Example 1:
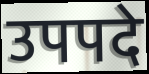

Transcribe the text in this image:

उपपदे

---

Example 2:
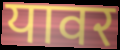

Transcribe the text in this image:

यावर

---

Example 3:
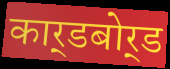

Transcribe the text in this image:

कार्डबोर्ड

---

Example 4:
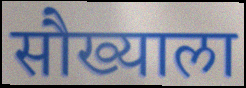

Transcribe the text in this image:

सौख्याला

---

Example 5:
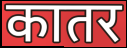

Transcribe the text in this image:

कातर